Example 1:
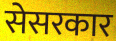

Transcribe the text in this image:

सेसरकार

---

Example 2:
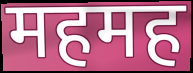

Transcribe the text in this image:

महमह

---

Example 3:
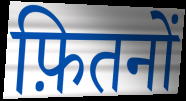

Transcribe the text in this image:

फ़ितनों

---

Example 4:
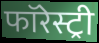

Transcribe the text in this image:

फॉरेस्ट्री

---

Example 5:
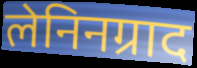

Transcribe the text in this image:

लेनिनग्राद